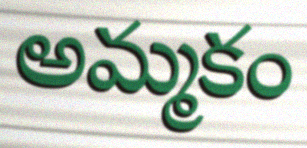
అమ్మకం